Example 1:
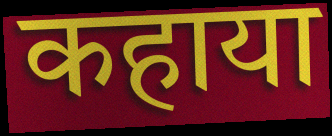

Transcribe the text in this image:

कहाया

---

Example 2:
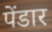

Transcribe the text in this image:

पेंडार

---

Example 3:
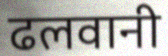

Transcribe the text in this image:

ढलवानी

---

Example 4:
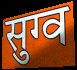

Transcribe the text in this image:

सुग्व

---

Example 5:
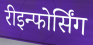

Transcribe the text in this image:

रीइन्फोर्सिंग